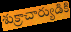
శుక్రాచార్యుడికి